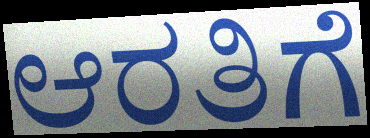
ಆರತಿಗೆ